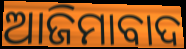
ଆଜିମାବାଦ